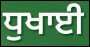
ਧੁਖਾਈ